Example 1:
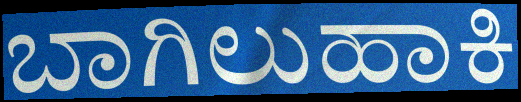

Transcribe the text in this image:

ಬಾಗಿಲುಹಾಕಿ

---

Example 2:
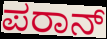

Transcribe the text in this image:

ಪರಾನ್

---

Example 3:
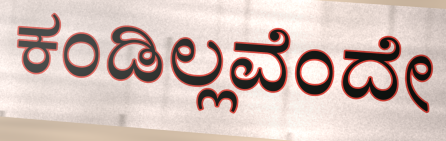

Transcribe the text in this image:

ಕಂಡಿಲ್ಲವೆಂದೇ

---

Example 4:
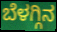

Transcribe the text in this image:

ಬೆಳಗ್ಗಿನ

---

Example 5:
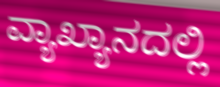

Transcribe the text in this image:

ವ್ಯಾಖ್ಯಾನದಲ್ಲಿ